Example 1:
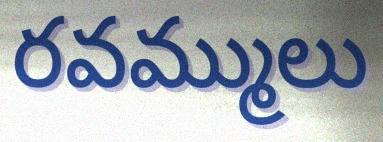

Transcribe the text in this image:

రవమ్ములు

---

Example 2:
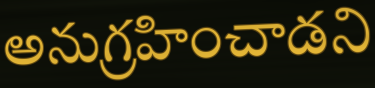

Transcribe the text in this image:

అనుగ్రహించాడని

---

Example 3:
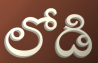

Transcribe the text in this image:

లోడి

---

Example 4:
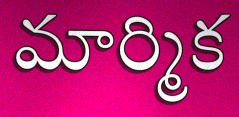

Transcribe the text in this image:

మార్మిక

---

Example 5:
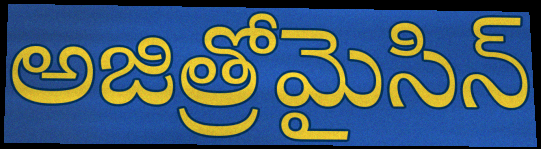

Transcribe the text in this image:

అజిత్రోమైసిన్